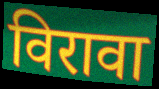
विरावा